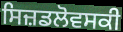
ਸਿਜ਼ਡਲੋਵਸਕੀ